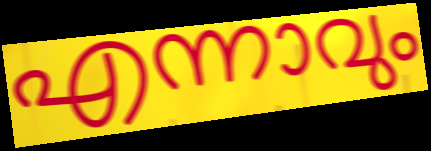
എന്നാവും